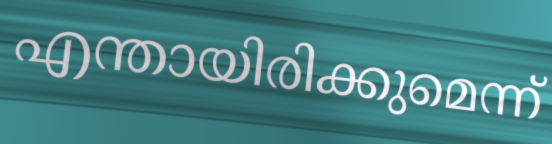
എന്തായിരിക്കുമെന്ന്